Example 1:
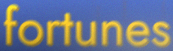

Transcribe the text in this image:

fortunes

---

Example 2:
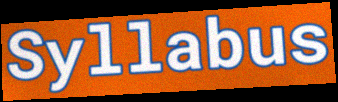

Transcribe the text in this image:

Syllabus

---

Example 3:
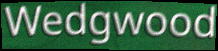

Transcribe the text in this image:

Wedgwood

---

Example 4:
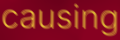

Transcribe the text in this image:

causing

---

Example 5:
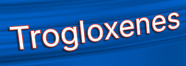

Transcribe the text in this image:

Trogloxenes